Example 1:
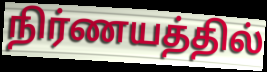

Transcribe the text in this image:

நிர்ணயத்தில்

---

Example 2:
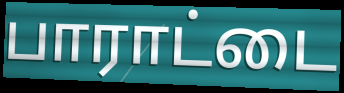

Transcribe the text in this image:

பாராட்டை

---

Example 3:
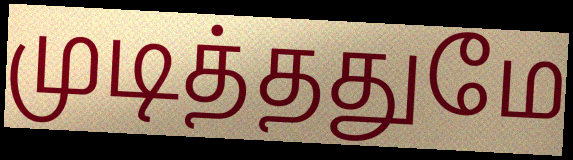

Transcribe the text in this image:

முடித்ததுமே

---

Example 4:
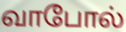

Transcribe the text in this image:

வாபோல்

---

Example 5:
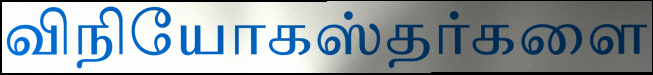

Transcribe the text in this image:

விநியோகஸ்தர்களை